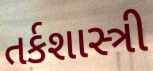
તર્કશાસ્ત્રી